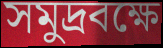
সমুদ্রবক্ষে